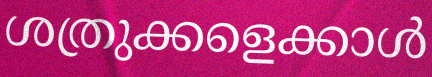
ശത്രുക്കളെക്കാൾ